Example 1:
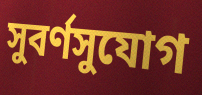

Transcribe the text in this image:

সুবর্ণসুযোগ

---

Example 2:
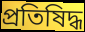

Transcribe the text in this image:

প্রতিষিদ্ধ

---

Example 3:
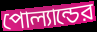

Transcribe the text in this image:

পোল্যান্ডের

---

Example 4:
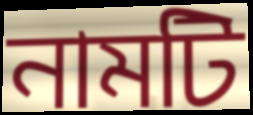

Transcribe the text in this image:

নামটি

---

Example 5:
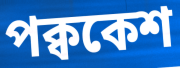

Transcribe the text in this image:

পক্বকেশ